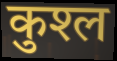
कुश्ल